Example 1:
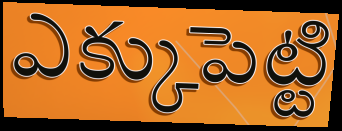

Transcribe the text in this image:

ఎక్కుపెట్టి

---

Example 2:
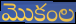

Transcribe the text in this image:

మొకంల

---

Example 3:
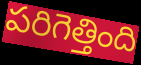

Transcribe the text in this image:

పరిగెత్తింది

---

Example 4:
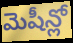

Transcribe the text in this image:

మెషీన్లో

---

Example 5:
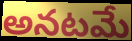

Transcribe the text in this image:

అనటమే